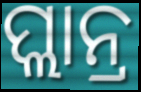
ପ୍ଲାନ୍ର